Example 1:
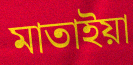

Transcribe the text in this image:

মাতাইয়া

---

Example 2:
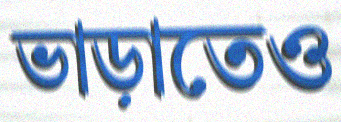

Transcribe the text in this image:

ভাড়াতেও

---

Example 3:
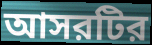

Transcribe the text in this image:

আসরটির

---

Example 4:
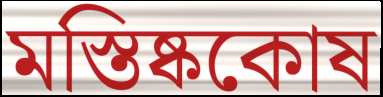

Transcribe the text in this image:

মস্তিষ্ককোষ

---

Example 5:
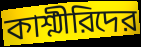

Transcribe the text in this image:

কাশ্মীরিদের